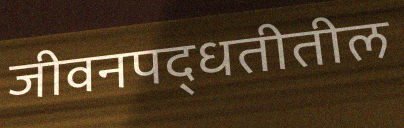
जीवनपद्धतीतील